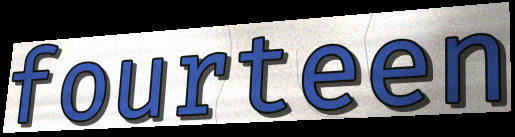
fourteen